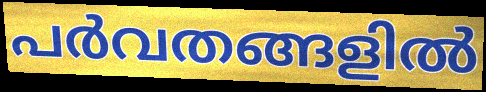
പർവതങ്ങളിൽ